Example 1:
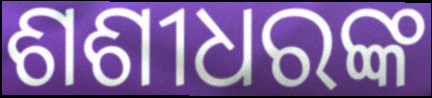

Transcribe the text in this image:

ଶଶୀଧରଙ୍କ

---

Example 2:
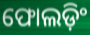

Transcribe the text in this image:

ଫୋଲଡ଼ିଂ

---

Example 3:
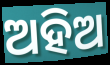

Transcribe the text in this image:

ଅହିଅ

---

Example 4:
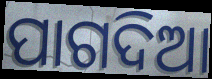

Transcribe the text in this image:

ପାଗଦିଆ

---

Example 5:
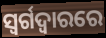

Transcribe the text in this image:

ସ୍ୱର୍ଗଦ୍ୱାରରେ